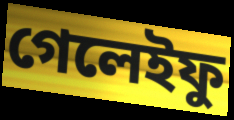
গেলেইফু